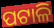
ପଟାଳି